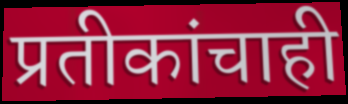
प्रतीकांचाही